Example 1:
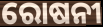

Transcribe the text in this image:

ରୋଷନୀ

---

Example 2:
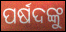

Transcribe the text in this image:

ପର୍ଷଦଙ୍କୁ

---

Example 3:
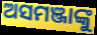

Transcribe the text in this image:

ଅସମଞ୍ଜାଙ୍କୁ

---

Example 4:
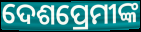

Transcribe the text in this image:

ଦେଶପ୍ରେମୀଙ୍କ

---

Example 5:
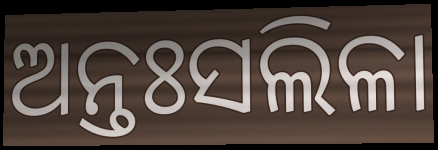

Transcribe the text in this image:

ଅନ୍ତଃସଲିଳା